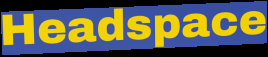
Headspace